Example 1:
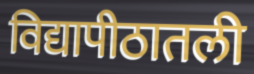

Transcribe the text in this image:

विद्यापीठातली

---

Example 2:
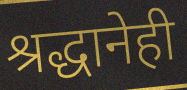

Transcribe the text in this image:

श्रद्धानेही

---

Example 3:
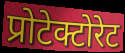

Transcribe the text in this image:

प्रोटेक्टोरेट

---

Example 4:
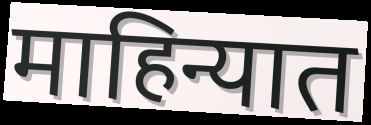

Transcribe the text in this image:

माहिन्यात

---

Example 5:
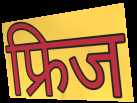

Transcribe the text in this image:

फ्रिज